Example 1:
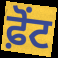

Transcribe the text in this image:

ਫ਼ੋਂਟ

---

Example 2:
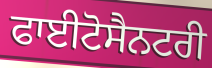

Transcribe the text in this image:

ਫਾਈਟੋਸੈਨਟਰੀ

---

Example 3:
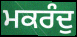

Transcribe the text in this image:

ਮਕਰੰਦੁ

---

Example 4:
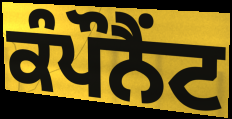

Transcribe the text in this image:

ਕੰਪੌਨੈਂਟ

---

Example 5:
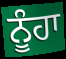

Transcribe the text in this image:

ਨੂੰਹਾ